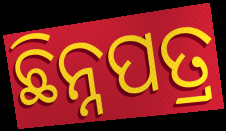
ଛିନ୍ନପତ୍ର